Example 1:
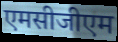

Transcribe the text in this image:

एमसीजीएम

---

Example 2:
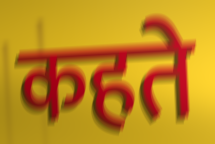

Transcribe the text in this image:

कहते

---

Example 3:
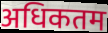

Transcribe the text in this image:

अधिकतम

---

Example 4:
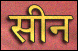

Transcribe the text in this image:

सीन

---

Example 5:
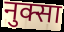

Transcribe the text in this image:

नुक्सा